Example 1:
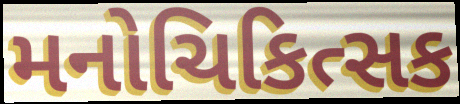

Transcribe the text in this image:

મનોચિકિત્સક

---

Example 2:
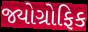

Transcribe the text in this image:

જ્યોગ્રોફિક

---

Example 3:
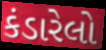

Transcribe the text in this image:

કંડારેલો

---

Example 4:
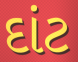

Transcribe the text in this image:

દાંટ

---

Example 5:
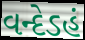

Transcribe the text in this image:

વન્દેઽહં